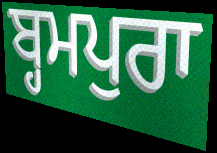
ਬ੍ਹਮਪੁਰਾ